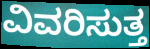
ವಿವರಿಸುತ್ತ